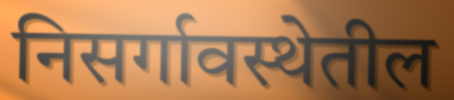
निसर्गावस्थेतील